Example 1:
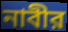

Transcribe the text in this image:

নাবীর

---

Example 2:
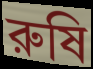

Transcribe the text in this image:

রুষি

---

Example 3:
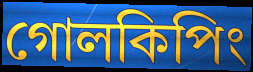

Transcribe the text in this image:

গোলকিপিং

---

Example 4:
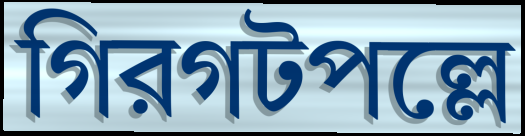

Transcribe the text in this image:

গিরগটপল্লে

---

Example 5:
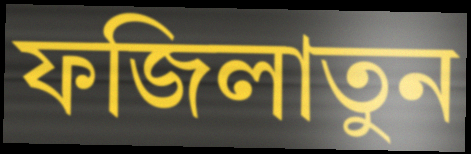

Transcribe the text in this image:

ফজিলাতুন